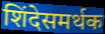
शिंदेसमर्थक